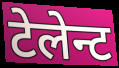
टेलेन्ट